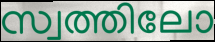
സ്വത്തിലോ